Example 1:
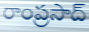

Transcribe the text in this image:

రాంప్రసాద్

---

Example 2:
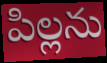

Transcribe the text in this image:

పిల్లను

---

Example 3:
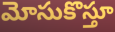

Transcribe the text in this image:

మోసుకొస్తూ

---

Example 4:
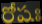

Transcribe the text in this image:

రోషః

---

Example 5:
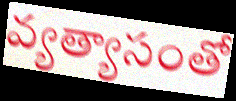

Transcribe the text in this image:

వ్యత్యాసంతో